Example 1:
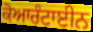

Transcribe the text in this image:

ਕੋਆਰੰਟਾਈਨ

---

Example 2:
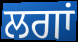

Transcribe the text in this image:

ਲਗਾਂ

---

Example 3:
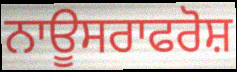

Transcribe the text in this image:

ਨਾਊਸਰਾਫਰੋਸ਼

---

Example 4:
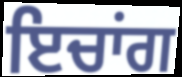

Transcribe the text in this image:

ਇਚਾਂਗ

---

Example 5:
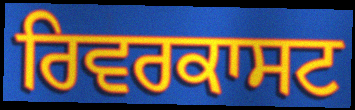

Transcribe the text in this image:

ਰਿਵਰਕਾਸਟ